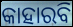
କାହାରବି